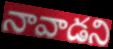
నావాడని